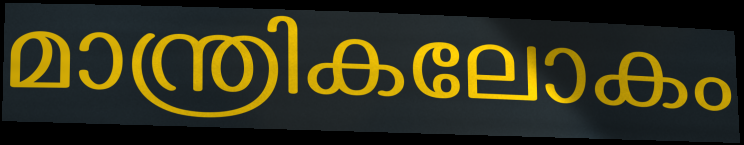
മാന്ത്രികലോകം